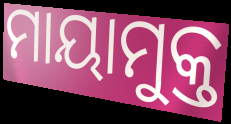
ମାୟାମୁକ୍ତ